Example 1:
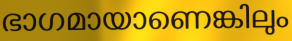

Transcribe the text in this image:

ഭാഗമായാണെങ്കിലും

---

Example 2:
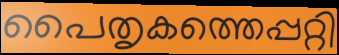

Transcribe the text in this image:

പൈതൃകത്തെപ്പറ്റി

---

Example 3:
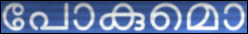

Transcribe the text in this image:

പോകുമൊ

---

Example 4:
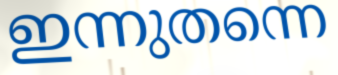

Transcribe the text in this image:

ഇന്നുതന്നെ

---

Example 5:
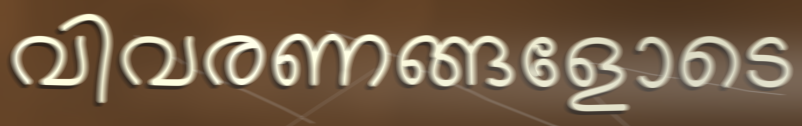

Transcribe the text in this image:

വിവരണങ്ങളോടെ